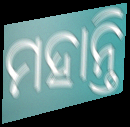
ମହାନ୍ତି